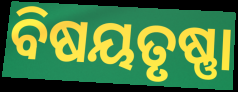
ବିଷୟତୃଷ୍ଣା